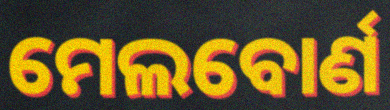
ମେଲବୋର୍ଣ